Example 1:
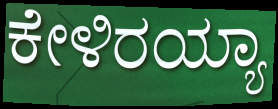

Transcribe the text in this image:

ಕೇಳಿರಯ್ಯಾ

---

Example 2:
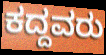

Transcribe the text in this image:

ಕದ್ದವರು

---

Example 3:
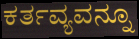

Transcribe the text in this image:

ಕರ್ತವ್ಯವನ್ನೂ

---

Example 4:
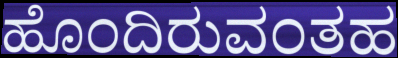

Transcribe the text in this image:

ಹೊಂದಿರುವಂತಹ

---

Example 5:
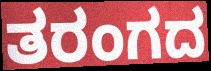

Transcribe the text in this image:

ತರಂಗದ